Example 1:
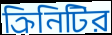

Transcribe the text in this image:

ক্রিনিটির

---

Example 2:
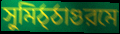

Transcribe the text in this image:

সুমিঠ্ঠাগুরমে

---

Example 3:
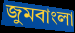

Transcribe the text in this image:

জুমবাংলা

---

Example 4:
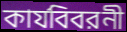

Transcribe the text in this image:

কার্যবিবরনী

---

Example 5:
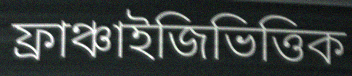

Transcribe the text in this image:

ফ্রাঞ্চাইজিভিত্তিক